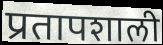
प्रतापशाली